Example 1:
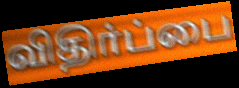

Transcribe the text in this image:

விதிர்ப்பை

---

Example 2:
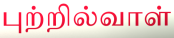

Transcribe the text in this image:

புற்றில்வாள்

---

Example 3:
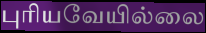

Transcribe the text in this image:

புரியவேயில்லை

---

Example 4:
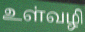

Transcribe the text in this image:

உள்வழி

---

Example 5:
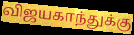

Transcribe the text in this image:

விஜயகாந்துக்கு